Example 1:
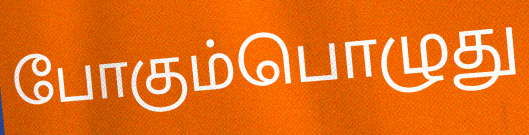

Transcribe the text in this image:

போகும்பொழுது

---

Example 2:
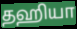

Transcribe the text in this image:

தஹியா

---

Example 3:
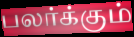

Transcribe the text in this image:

பலர்க்கும்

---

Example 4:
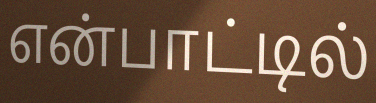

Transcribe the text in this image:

என்பாட்டில்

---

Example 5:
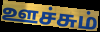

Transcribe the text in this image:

ஊச்சும்